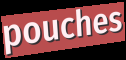
pouches